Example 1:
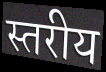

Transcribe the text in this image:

स्तरीय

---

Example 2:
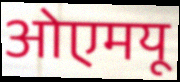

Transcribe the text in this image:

ओएमयू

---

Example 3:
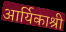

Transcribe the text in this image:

आर्यिकाश्री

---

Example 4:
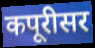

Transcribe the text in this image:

कपूरीसर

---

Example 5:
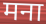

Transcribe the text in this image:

मना